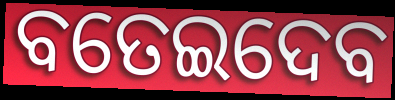
ବତେଇଦେବ